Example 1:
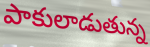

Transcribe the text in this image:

పాకులాడుతున్న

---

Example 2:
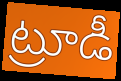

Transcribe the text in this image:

ట్రూడీ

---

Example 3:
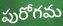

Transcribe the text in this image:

పురోగమ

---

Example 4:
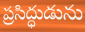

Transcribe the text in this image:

ప్రసిద్ధుడును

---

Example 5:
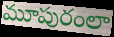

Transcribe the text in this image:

మూపురంలా